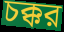
চক্কর